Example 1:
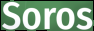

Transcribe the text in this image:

Soros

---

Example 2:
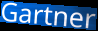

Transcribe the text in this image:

Gartner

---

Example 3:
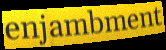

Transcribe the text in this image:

enjambment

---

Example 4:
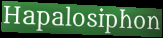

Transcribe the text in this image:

Hapalosiphon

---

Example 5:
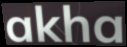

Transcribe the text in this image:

akha